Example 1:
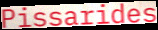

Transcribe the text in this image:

Pissarides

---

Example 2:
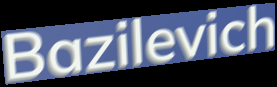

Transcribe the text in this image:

Bazilevich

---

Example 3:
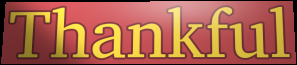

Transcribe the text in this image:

Thankful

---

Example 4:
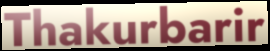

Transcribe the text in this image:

Thakurbarir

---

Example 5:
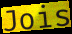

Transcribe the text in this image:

Jois